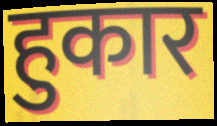
हुकार